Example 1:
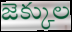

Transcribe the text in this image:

జెక్కుల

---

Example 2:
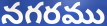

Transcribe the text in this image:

నగరము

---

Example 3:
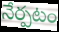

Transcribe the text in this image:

నేర్పటం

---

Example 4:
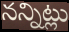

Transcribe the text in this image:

నన్నిట్లు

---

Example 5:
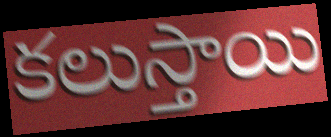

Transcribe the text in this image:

కలుస్తాయి